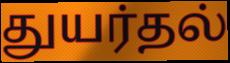
துயர்தல்